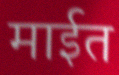
माईत